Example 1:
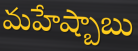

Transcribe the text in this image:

మహేష్బాబు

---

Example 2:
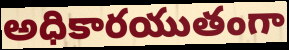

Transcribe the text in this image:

అధికారయుతంగా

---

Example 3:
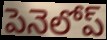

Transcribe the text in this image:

పెనెలోప్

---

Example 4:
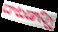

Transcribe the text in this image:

దాటడాన్ని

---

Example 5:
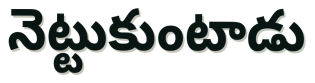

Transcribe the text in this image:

నెట్టుకుంటాడు